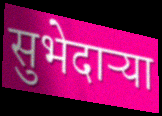
सुभेदाऱ्या